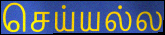
செய்யல்ல